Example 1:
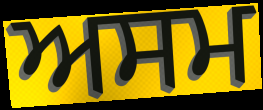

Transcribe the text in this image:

ਅਸਮ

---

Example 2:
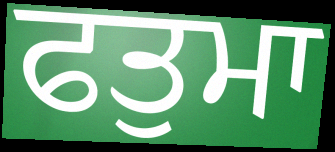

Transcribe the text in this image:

ਫਤੁਮਾ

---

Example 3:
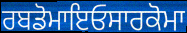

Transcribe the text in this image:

ਰਬਡੋਮਾਇਓਸਾਰਕੋਮਾ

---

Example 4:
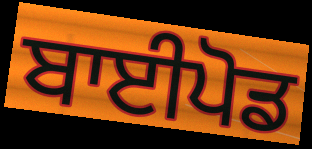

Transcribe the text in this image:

ਬਾਈਪੋਡ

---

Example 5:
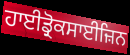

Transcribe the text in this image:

ਹਾਈਡ੍ਰੋਕਸਾਈਜ਼ਿਨ